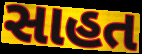
સાહત